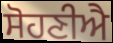
ਸੋਹਣੀਐ